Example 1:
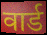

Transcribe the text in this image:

वार्ड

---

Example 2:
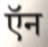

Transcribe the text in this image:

ऍन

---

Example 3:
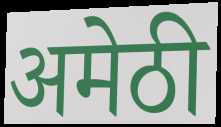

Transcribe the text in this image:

अमेठी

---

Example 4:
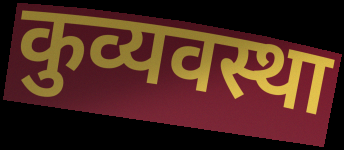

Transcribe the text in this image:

कुव्यवस्था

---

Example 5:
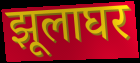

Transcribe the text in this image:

झूलाघर